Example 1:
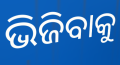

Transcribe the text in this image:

ଭିଜିବାକୁ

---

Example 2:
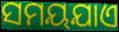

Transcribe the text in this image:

ସମୟଯାଏ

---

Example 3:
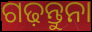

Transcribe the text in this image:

ଗଢ଼ନ୍ତୁନା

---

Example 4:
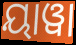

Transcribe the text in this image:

ୟାୱା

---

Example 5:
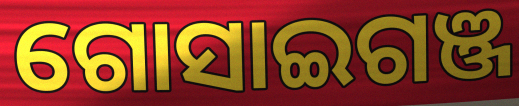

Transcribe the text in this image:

ଗୋସାଇଗଞ୍ଜ